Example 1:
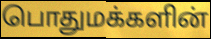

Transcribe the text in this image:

பொதுமக்களின்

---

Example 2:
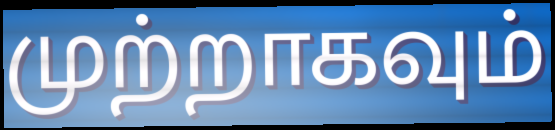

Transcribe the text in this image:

முற்றாகவும்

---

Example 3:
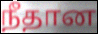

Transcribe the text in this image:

நீதான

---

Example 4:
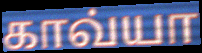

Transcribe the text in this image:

காவ்யா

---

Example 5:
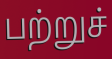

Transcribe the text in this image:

பற்றுச்